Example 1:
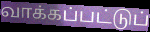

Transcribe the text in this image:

வாக்கப்பட்டுப்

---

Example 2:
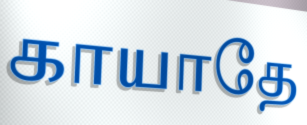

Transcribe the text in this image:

காயாதே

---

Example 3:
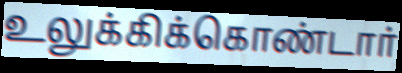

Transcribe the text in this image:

உலுக்கிக்கொண்டார்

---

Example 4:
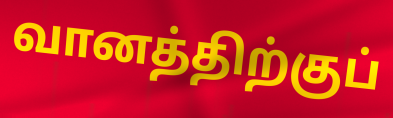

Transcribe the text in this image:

வானத்திற்குப்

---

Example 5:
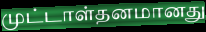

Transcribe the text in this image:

முட்டாள்தனமானது